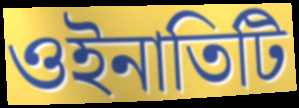
ওইনাতিটি